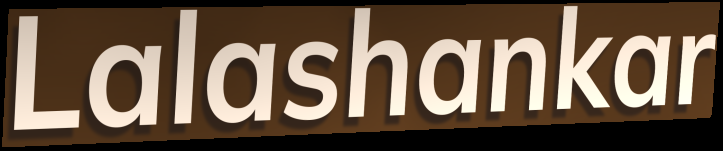
Lalashankar